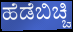
ಹೆಡೆಬಿಚ್ಚಿ